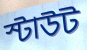
স্টাউট